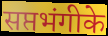
सप्तभंगीके